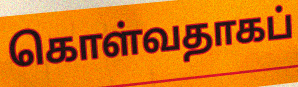
கொள்வதாகப்